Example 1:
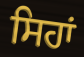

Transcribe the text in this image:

ਸਿਹਾਂ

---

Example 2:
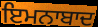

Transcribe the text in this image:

ਇਮਨਾਬਾਦ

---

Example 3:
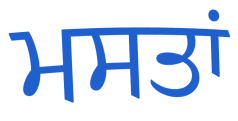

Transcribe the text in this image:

ਮਸਤਾਂ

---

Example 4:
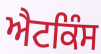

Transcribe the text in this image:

ਐਟਕਿੰਸ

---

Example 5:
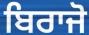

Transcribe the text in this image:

ਬਿਰਾਜੋ